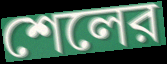
শেলের